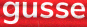
gusse